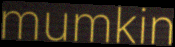
mumkin